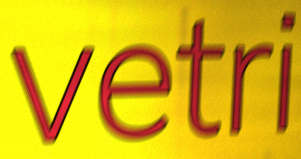
vetri